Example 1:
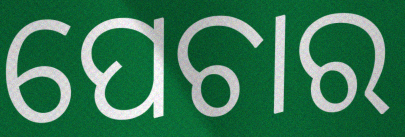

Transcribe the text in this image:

ପେଚାର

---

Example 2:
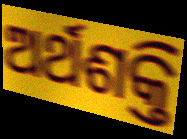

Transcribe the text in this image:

ଅର୍ଥଶକ୍ତି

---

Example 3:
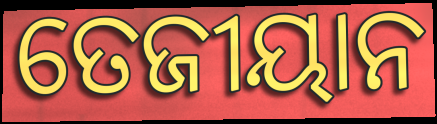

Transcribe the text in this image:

ତେଜୀୟାନ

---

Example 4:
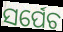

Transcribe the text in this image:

ସର୍ପେଚ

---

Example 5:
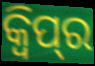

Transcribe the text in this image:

କ୍ଵିପ୍‌ର